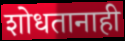
शोधतानाही